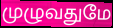
முழுவதுமே